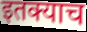
इतक्याच